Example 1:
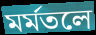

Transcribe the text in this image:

মর্মতলে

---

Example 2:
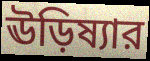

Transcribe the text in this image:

ঊড়িষ্যার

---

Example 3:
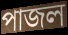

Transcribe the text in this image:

পাজল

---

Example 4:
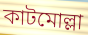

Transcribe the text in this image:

কাটমোল্লা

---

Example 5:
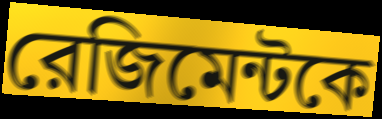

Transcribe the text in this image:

রেজিমেন্টকে